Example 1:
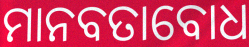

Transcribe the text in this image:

ମାନବତାବୋଧ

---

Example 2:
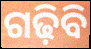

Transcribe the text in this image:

ଗଢ଼ିବି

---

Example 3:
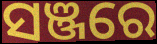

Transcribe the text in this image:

ସଞ୍ଜରେ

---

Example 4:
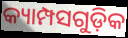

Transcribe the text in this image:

କ୍ୟାମ୍ପସଗୁଡ଼ିକ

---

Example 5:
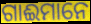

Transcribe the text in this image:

ଗାଈମାନେ